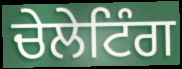
ਚੇਲੇਟਿੰਗ